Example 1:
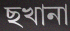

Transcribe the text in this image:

ছখানা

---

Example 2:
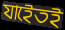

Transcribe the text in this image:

যাইেতই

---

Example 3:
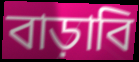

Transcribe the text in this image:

বাড়াবি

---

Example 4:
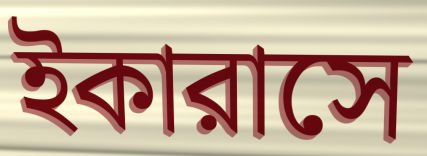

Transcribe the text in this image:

ইকারাসে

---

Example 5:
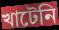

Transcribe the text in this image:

খাটেনি